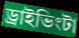
ড্রাইভিংটা